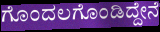
ಗೊಂದಲಗೊಂಡಿದ್ದೇನೆ